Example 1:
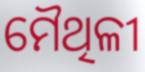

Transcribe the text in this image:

ମୈଥିଳୀ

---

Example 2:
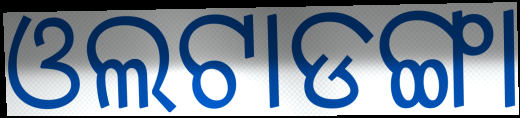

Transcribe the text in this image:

ଓଲଟାଡଙ୍ଗା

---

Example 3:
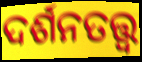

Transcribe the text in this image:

ଦର୍ଶନତତ୍ତ୍ଵ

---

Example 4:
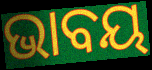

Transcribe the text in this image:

ଭାବୟ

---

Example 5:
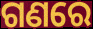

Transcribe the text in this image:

ଗଣରେ